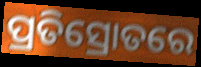
ପ୍ରତିସ୍ରୋତରେ